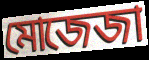
মোজেজা